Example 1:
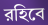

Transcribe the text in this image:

রহিবে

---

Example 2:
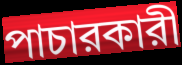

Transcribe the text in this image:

পাচারকারী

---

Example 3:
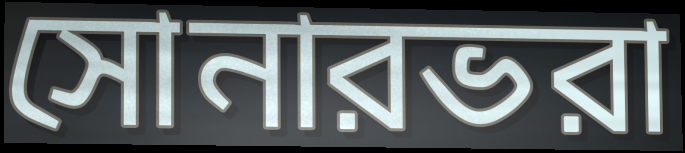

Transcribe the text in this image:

সোনারভরা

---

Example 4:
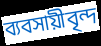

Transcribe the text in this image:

ব্যবসায়ীবৃন্দ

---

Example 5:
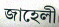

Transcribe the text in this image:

জাহেলী